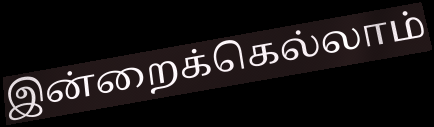
இன்றைக்கெல்லாம்